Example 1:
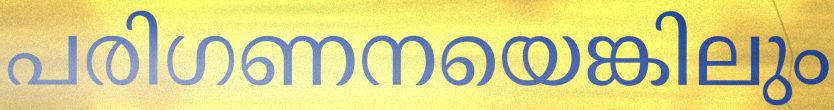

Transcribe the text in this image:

പരിഗണനയെങ്കിലും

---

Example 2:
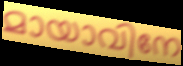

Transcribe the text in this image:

മായാവിനേ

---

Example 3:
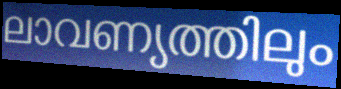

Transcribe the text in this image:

ലാവണ്യത്തിലും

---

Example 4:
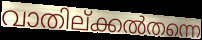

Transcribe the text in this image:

വാതില്ക്കൽതന്നെ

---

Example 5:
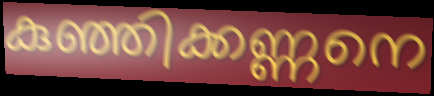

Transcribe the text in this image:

കുഞ്ഞിക്കണ്ണനെ